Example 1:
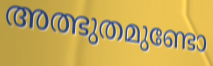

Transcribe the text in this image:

അത്ഭുതമുണ്ടോ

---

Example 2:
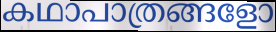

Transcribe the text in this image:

കഥാപാത്രങ്ങളോ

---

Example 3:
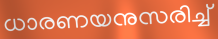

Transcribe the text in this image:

ധാരണയനുസരിച്ച്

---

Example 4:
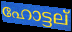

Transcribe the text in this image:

ഹോട്ടല്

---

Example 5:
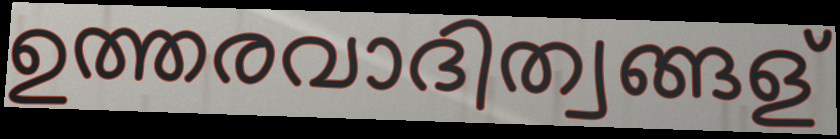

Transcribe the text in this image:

ഉത്തരവാദിത്വങ്ങള്